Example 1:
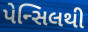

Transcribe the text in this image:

પેન્સિલથી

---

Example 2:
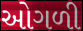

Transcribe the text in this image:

ઓગળી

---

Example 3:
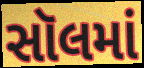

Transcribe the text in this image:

સૉલમાં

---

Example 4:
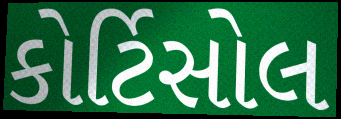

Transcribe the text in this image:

કોર્ટિસોલ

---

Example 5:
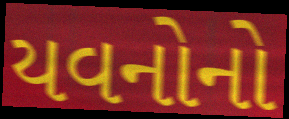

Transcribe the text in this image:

યવનોનો